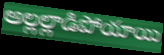
అల్లల్లాడిపోయాయి